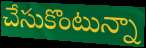
చేసుకొంటున్నా